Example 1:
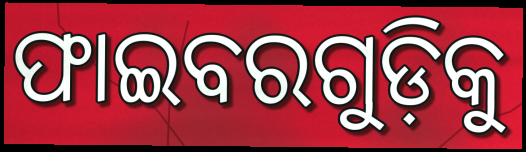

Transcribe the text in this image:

ଫାଇବରଗୁଡ଼ିକୁ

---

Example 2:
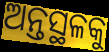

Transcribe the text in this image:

ଅନ୍ତସ୍ଥଳକୁ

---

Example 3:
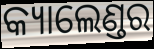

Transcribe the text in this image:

କ୍ୟାଲେଣ୍ଡର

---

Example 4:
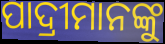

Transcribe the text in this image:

ପାଦ୍ରୀମାନଙ୍କୁ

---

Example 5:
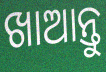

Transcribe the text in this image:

ଖାଆନ୍ତୁ